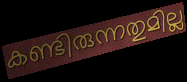
കണ്ടിരുന്നതുമില്ല